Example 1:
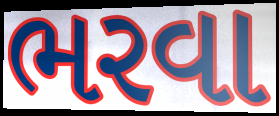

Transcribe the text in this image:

ભરવા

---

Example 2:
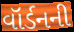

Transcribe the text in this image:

વૉર્ડનની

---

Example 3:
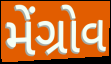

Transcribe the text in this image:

મેંગ્રોવ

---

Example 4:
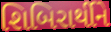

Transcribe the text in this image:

શિબિરાર્થીને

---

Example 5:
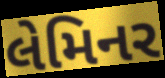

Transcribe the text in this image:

લેમિનર